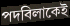
পদবিলাকেই